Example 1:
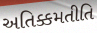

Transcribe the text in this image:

અતિક્કમતીતિ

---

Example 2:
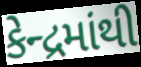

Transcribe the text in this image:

કેન્દ્રમાંથી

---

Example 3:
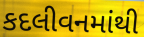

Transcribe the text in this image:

કદલીવનમાંથી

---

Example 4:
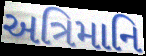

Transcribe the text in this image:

અત્રિમાનિ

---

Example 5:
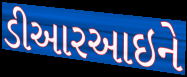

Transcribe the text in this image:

ડીઆરઆઇને